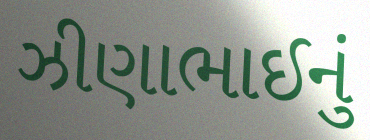
ઝીણાભાઈનું